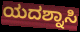
ಯದಶ್ನಾಸಿ